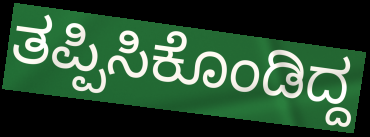
ತಪ್ಪಿಸಿಕೊಂಡಿದ್ದ